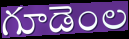
గూడెంల